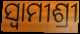
ସ୍ଵାମୀଶ୍ରୀ